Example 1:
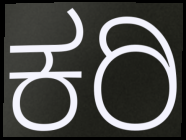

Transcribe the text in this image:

ಕರಿ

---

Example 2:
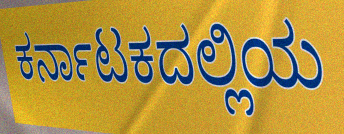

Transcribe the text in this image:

ಕರ್ನಾಟಕದಲ್ಲಿಯ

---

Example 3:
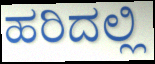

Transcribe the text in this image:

ಹರಿದಲ್ಲಿ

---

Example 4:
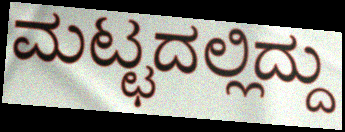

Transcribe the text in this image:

ಮಟ್ಟದಲ್ಲಿದ್ದು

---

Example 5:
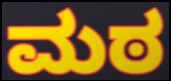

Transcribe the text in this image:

ಮಠ